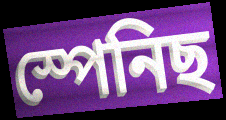
স্পেনিছ